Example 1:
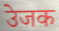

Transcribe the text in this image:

उेजक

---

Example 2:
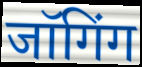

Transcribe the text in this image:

जॉगिंग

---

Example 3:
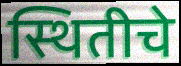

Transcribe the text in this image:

स्थितीचे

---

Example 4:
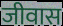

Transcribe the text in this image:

जीवास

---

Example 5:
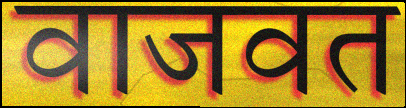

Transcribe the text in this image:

वाजवत